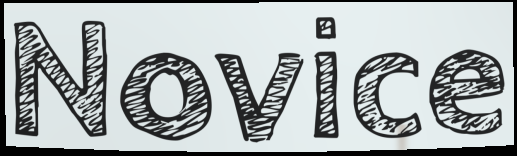
Novice